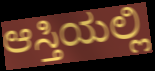
ಆಸ್ತಿಯಲ್ಲಿ